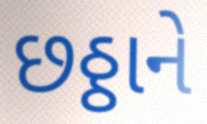
છઠ્ઠાને